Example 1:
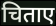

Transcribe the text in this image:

चिताए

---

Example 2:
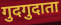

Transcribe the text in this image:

गुदगुदाता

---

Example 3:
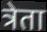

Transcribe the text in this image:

त्रेता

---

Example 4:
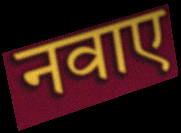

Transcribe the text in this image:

नवाए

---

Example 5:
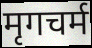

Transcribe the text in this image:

मृगचर्म